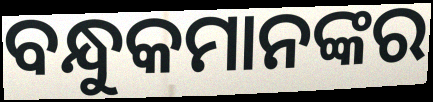
ବନ୍ଧୁକମାନଙ୍କର